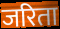
जरिता